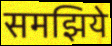
समझिये